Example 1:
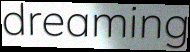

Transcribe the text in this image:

dreaming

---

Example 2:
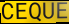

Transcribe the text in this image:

CEQUE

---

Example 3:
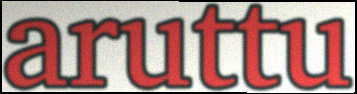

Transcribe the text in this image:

aruttu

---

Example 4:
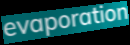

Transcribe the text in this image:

evaporation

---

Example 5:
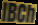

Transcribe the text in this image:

IBCh